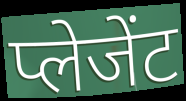
प्लेजेंट